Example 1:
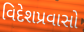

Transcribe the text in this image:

વિદેશપ્રવાસો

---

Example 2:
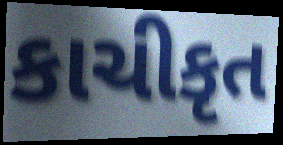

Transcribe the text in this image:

કાચીકૃત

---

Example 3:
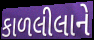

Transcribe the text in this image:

કાળલીલાને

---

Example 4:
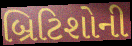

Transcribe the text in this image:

બ્રિટિશોની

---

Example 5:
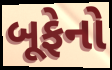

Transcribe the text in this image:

બૂફેનો